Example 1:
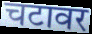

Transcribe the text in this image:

चटावर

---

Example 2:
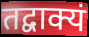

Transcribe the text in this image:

तद्वाक्यं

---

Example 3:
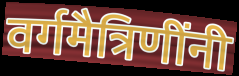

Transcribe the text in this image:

वर्गमैत्रिणींनी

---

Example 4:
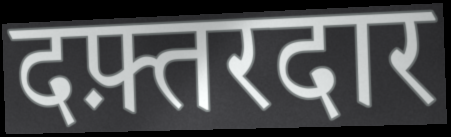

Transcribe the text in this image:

दफ़्तरदार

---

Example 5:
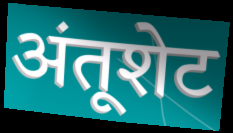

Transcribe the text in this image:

अंतूशेट